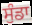
ਸੁੰਡਾ